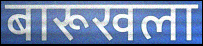
बारूखला